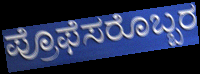
ಪ್ರೊಫೆಸರೊಬ್ಬರ